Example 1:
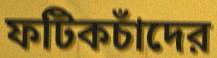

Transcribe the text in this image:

ফটিকচাঁদের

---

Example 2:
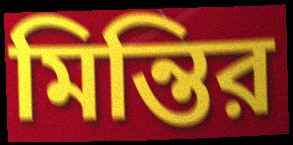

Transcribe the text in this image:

মিন্তির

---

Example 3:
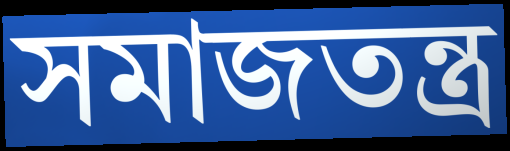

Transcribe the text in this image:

সমাজতন্ত্র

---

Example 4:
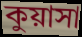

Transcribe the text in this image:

কুয়াসা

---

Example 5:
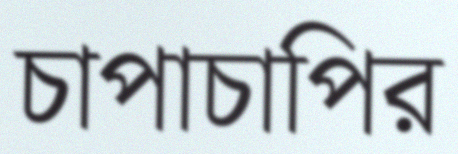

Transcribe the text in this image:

চাপাচাপির